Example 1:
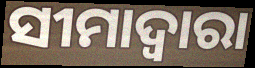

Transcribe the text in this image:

ସୀମାଦ୍ଵାରା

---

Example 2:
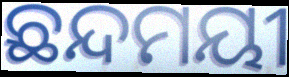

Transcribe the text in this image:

ଛନ୍ଦମୟୀ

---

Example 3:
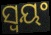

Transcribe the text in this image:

ସ୍ଵୟଂ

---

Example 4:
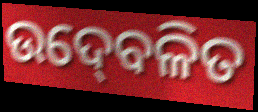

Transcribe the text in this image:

ଉଦ୍‍ବେଳିତ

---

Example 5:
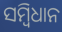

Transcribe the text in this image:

ସମ୍ୱିଧାନ